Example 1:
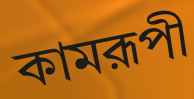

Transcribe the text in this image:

কামরূপী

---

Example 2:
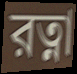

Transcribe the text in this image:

রত্না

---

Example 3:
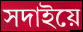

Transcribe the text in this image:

সদাইয়ে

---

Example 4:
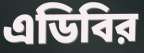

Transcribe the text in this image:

এডিবির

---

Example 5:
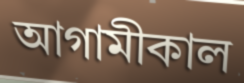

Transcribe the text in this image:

আগামীকাল